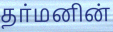
தர்மனின்